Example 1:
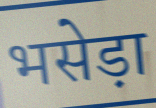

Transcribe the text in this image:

भसेड़ा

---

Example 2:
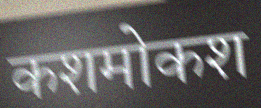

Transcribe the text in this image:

कशमोकश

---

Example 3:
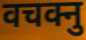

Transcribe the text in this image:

वचक्नु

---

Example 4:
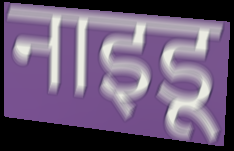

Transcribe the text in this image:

नाइडू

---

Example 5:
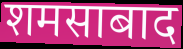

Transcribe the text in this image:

शमसाबाद